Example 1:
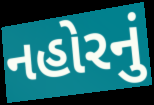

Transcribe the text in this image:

નહોરનું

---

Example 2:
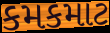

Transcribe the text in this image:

કમકમાટ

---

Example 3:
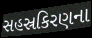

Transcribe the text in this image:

સહસ્રકિરણના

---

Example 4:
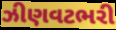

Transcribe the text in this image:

ઝીણવટભરી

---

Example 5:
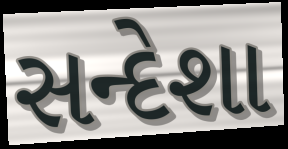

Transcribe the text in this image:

સન્દેશા